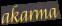
akarma